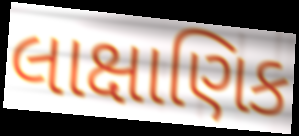
લાક્ષાણિક